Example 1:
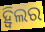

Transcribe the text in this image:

ହ୍ଵିଲର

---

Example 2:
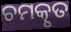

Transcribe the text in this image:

ଚମତ୍କୃତ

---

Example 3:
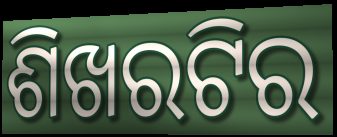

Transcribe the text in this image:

ଶିଖରଟିର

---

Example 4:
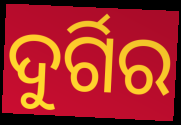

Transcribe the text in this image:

ଦୁର୍ଗିର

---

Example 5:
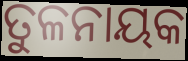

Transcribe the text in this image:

ତୁଳନାୟକ